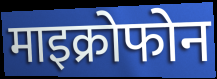
माइक्रोफोन